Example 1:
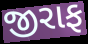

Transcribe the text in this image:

જીરાફ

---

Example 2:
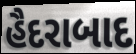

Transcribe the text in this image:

હૈદરાબાદ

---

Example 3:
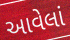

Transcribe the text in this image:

આવેલાં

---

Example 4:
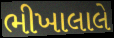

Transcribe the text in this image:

ભીખાલાલે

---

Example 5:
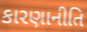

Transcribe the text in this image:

કારણાનીતિ